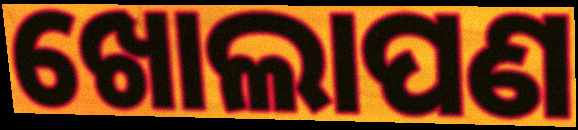
ଖୋଲାପଣ